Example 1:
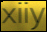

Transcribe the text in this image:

xiiy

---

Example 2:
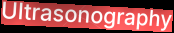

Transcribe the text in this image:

Ultrasonography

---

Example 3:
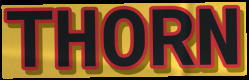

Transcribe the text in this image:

THORN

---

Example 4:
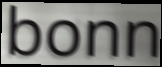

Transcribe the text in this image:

bonn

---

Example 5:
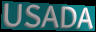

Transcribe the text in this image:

USADA